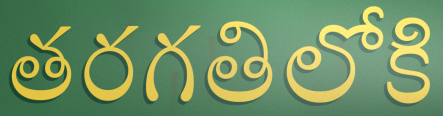
తరగతిలోకి